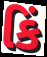
કિં